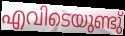
എവിടെയുണ്ടു്